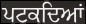
ਪਟਕਦਿਆਂ